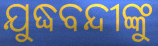
ଯୁଦ୍ଧବନ୍ଦୀଙ୍କୁ